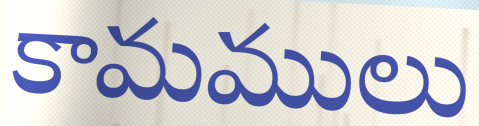
కామములు